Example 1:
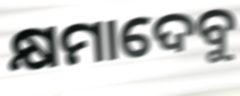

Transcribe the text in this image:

କ୍ଷମାଦେବୁ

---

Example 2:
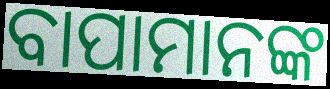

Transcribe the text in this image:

ବାପାମାନଙ୍କ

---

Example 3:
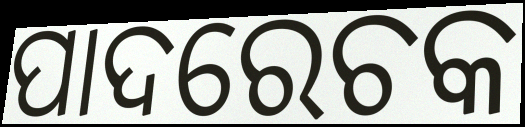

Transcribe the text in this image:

ପାଦରେଚକ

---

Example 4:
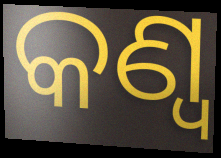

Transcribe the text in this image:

କଣ୍ୱ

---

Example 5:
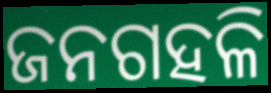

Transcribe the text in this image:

ଜନଗହଳି